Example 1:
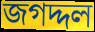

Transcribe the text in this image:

জগদ্দল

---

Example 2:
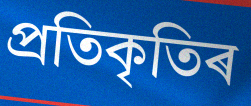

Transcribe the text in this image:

প্ৰতিকৃতিৰ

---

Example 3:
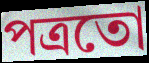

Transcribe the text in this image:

পত্ৰতো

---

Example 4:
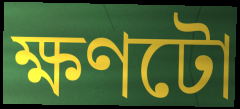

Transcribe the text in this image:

ক্ষণটো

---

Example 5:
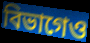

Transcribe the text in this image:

বিভাগেও